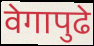
वेगापुढे